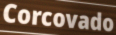
Corcovado